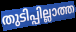
തുടിപ്പില്ലാത്ത